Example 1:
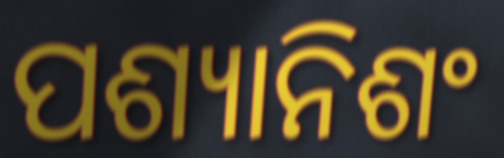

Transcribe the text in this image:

ପଶ୍ୟାନିଶଂ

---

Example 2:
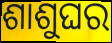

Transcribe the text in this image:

ଶାଶୁଘର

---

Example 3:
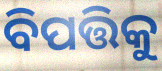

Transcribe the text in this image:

ବିପତ୍ତିକୁ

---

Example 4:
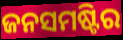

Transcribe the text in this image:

ଜନସମଷ୍ଟିର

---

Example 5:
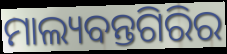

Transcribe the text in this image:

ମାଲ୍ୟବନ୍ତଗିରିର